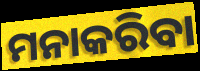
ମନାକରିବା